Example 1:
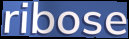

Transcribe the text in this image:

ribose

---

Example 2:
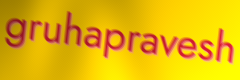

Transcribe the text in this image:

gruhapravesh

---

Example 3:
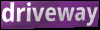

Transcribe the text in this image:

driveway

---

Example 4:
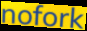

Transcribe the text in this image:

nofork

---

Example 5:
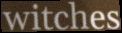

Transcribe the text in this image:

witches